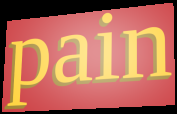
pain